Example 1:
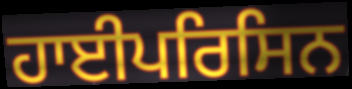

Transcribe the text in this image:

ਹਾਈਪਰਿਸਿਨ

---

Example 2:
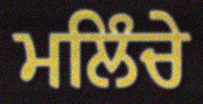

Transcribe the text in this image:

ਮਲਿੰਚੇ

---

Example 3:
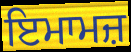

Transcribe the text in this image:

ਇਮਾਮਜ਼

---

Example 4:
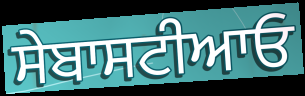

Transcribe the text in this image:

ਸੇਬਾਸਟੀਆਓ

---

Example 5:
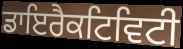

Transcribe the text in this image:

ਡਾਇਰੈਕਟਿਵਿਟੀ